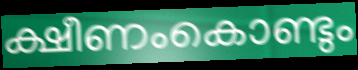
ക്ഷീണംകൊണ്ടും